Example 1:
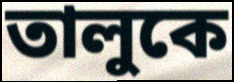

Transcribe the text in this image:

তালুকে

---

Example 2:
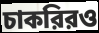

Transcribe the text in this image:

চাকরিরও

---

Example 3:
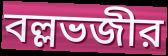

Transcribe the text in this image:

বল্লভজীর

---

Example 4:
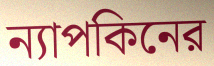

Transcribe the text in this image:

ন্যাপকিনের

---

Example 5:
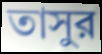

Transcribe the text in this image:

তাসুর